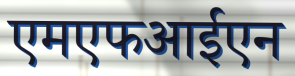
एमएफआईएन